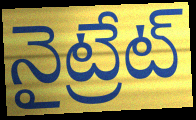
నైట్రేట్